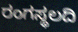
ರಂಗಸ್ಥಲದಿ